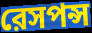
রেসপন্স